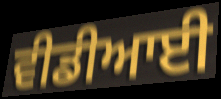
ਵੀਡੀਆਈ